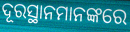
ଦୂରସ୍ଥାନମାନଙ୍କରେ